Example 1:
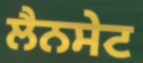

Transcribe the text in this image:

ਲੈਨਸੇਟ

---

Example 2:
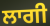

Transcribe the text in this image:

ਲਾਗੀ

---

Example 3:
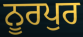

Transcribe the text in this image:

ਨੂਰਪੁਰ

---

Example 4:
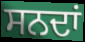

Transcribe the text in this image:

ਸਨਦਾਂ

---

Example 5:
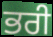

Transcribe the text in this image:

ਭਰੀ